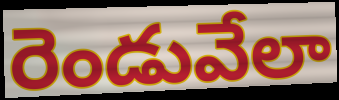
రెండువేలా